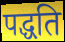
पद्धति